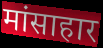
मांसाहार